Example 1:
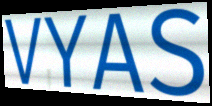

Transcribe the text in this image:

VYAS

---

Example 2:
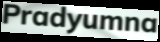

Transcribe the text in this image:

Pradyumna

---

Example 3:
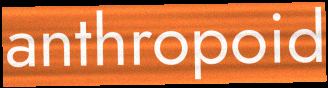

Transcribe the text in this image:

anthropoid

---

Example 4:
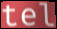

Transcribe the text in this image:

tel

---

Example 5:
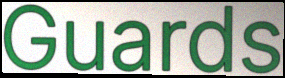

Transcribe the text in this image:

Guards